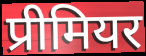
प्रीमियर